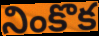
నింకొక